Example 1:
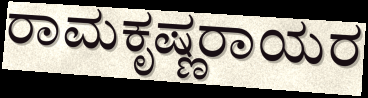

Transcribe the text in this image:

ರಾಮಕೃಷ್ಣರಾಯರ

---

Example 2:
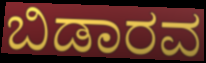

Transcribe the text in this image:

ಬಿಡಾರವ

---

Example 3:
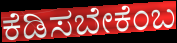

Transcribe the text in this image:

ಕೆಡಿಸಬೇಕೆಂಬ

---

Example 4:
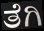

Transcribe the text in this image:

ತೆಗಿ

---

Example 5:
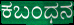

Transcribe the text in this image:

ಕಬಂಧನ